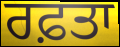
ਰਫ਼ਤਾ